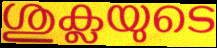
ശുക്ലയുടെ